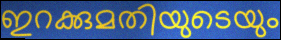
ഇറക്കുമതിയുടെയും